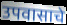
उपवासाचे